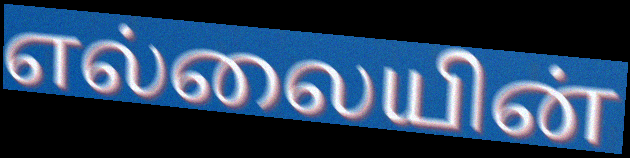
எல்லையின்